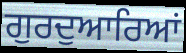
ਗੁਰਦੁਆਰਿਆਂ